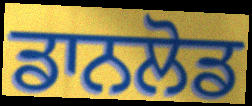
ਡਾਨਲੋਡ